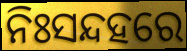
ନିଃସନ୍ଦହରେ